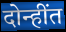
दोन्हींत